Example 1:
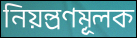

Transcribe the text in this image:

নিয়ন্ত্রণমূলক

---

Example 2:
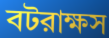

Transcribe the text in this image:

বটরাক্ষস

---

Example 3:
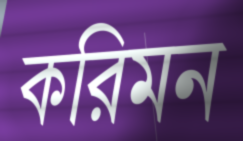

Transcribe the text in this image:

করিমন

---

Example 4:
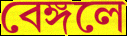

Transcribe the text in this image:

বেঙ্গলে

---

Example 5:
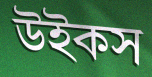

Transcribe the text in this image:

উইকস